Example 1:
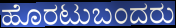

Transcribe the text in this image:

ಹೊರಟುಬಂದರು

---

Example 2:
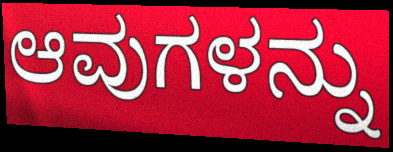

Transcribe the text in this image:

ಆವುಗಳನ್ನು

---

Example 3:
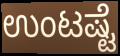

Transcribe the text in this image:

ಉಂಟಷ್ಟೆ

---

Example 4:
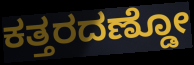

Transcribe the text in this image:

ಕತ್ತರದಣ್ಡೋ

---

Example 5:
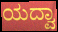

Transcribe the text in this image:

ಯದ್ವಾ